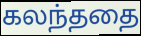
கலந்ததை